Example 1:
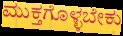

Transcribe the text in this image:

ಮುಕ್ತಗೊಳ್ಳಬೇಕು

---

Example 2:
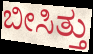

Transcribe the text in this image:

ಬೀಸಿತ್ತು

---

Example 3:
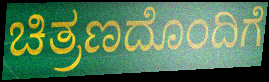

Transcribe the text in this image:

ಚಿತ್ರಣದೊಂದಿಗೆ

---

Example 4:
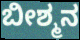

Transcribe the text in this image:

ಬೀಶ್ಮನ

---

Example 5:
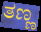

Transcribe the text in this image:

ತಣ್ಣ